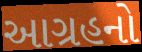
આગ્રહનો